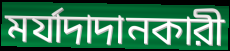
মর্যাদাদানকারী